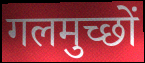
गलमुच्छों